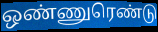
ஒண்ணுரெண்டு